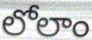
లోలాం